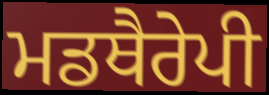
ਮਡਥੈਰੇਪੀ